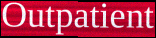
Outpatient